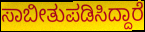
ಸಾಬೀತುಪಡಿಸಿದ್ದಾರೆ